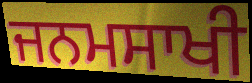
ਜਨਮਸਾਖੀ